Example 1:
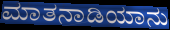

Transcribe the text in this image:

ಮಾತನಾಡಿಯಾನು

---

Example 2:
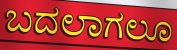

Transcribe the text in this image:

ಬದಲಾಗಲೂ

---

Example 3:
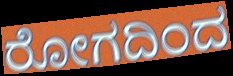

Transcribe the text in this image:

ರೋಗದಿಂದ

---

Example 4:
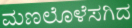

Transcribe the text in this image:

ಮಣಲೊಳೆಸಗಿದ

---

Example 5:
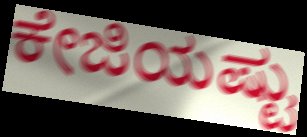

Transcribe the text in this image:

ಕೇಜಿಯಷ್ಟು